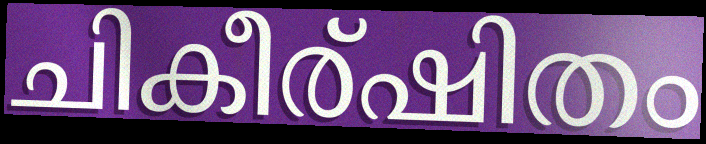
ചികീര്ഷിതം